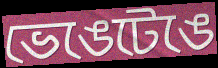
ভেঙেটেঙে